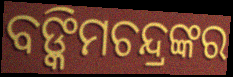
ବଙ୍କିମଚନ୍ଦ୍ରଙ୍କର